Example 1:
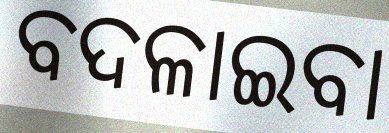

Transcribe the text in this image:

ବଦଳାଇବା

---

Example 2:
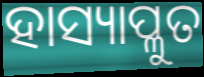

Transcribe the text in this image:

ହାସ୍ୟାପ୍ଳୁତ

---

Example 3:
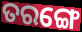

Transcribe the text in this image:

ତରଙ୍ଗେ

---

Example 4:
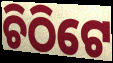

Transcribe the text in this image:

ଚିଠିଟେ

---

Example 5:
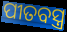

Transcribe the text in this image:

ପୀତବସ୍ତ୍ର